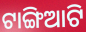
ଟାଙ୍ଗିଆଟି